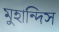
মুহান্দিস